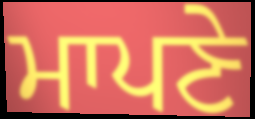
ਮਾਪਣੇ